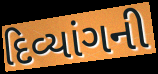
દિવ્યાંગની